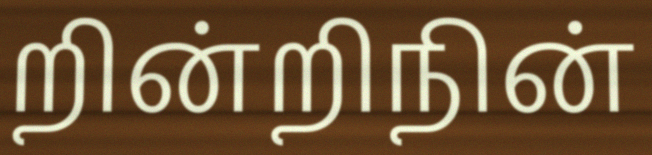
றின்றிநின்